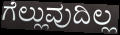
ಗೆಲ್ಲುವುದಿಲ್ಲ